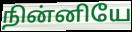
நின்னியே